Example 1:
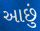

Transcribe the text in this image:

આછું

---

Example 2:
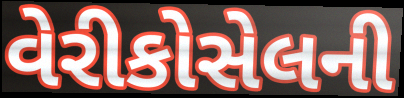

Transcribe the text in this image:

વેરીકોસેલની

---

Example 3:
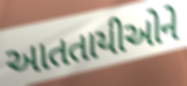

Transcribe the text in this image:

આતતાયીઓને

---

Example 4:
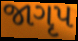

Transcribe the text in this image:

જાગૃપ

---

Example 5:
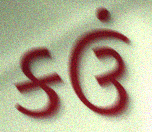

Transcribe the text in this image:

કઉં